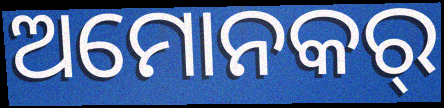
ଅମୋନକର୍